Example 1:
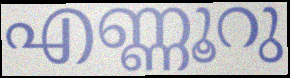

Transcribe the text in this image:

എണ്ണൂറു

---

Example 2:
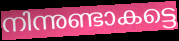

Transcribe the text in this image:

നിന്നുണ്ടാകട്ടെ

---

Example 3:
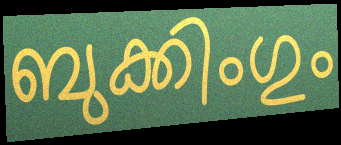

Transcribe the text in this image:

ബുക്കിംഗും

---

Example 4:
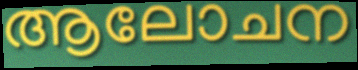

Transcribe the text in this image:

ആലോചന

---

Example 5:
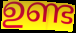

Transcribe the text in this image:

ഉണ്ട